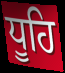
ਧੂਹਿ